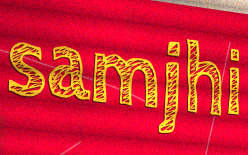
samjhi